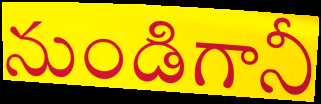
నుండిగానీ